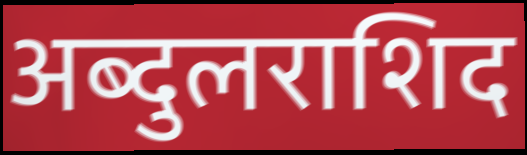
अब्दुलराशिद